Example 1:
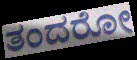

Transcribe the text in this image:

ತಂದರೋ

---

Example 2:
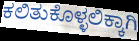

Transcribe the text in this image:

ಕಲಿತುಕೊಳ್ಳಲಿಕ್ಕಾಗಿ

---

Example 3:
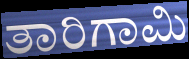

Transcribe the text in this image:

ತಾರಿಗಾಮಿ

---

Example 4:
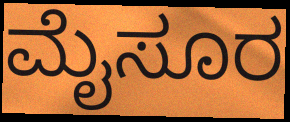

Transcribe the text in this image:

ಮೈಸೂರ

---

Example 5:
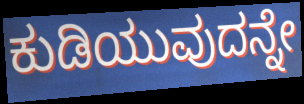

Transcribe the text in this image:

ಕುಡಿಯುವುದನ್ನೇ